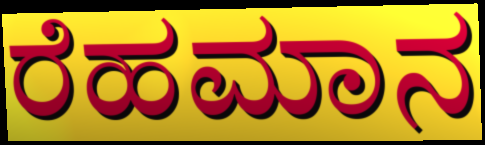
ರೆಹಮಾನ